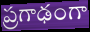
ప్రగాఢంగా